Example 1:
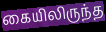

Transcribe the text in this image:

கையிலிருந்த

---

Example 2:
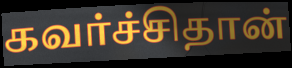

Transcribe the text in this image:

கவர்ச்சிதான்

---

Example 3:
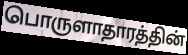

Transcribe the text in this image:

பொருளாதாரத்தின்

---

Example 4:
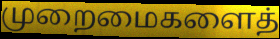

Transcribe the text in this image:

முறைமைகளைத்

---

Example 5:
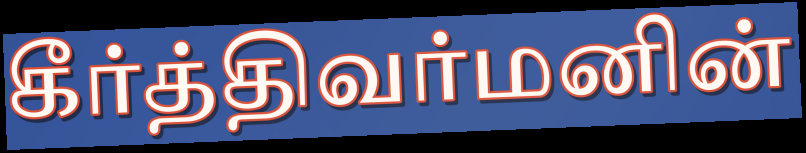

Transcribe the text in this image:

கீர்த்திவர்மனின்